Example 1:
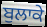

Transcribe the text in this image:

ਬੁਲਾਕੇ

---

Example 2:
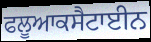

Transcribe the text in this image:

ਫਲੂਆਕਸੈਟਾਈਨ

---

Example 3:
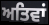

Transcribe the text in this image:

ਅਤਿਵਾਂ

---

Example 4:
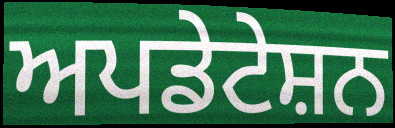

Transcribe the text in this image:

ਅਪਡੇਟੇਸ਼ਨ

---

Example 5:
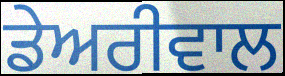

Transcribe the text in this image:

ਡੇਅਰੀਵਾਲ